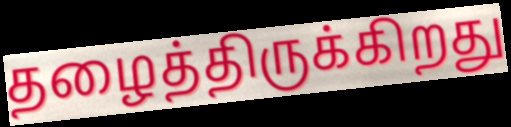
தழைத்திருக்கிறது